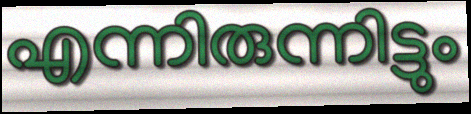
എന്നിരുന്നിട്ടും